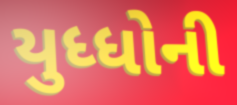
યુધ્ધોની